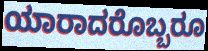
ಯಾರಾದರೊಬ್ಬರೂ